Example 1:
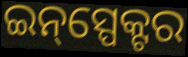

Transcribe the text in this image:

ଇନ୍‌ସ୍ପେକ୍ଟର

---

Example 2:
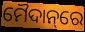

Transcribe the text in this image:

ମୈଦାନ୍‌ରେ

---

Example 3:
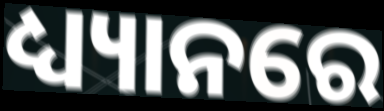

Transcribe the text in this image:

ଧ୍ୟ୍ୟାନରେ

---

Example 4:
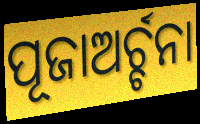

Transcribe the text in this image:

ପୂଜାଅର୍ଚ୍ଚନା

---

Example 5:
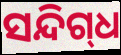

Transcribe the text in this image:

ସନ୍ଦିଗ୍‌ଧ